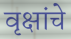
वृक्षांचे